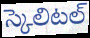
స్కెలిటల్